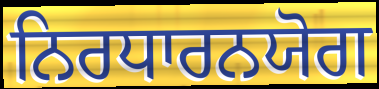
ਨਿਰਧਾਰਨਯੋਗ